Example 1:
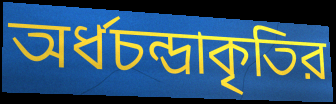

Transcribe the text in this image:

অর্ধচন্দ্রাকৃতির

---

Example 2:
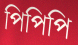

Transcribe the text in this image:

পিপিপি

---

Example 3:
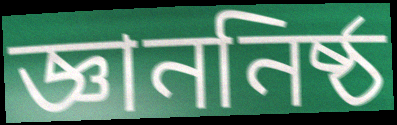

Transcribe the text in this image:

জ্ঞাননিষ্ঠ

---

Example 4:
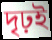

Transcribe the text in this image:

দৃঢ়ই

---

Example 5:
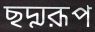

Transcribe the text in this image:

ছদ্মরূপ